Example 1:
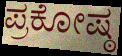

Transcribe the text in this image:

ಪ್ರಕೋಷ್ಠ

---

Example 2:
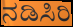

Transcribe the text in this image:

ನಡಿಸಿರಿ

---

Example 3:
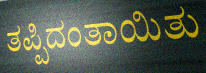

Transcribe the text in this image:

ತಪ್ಪಿದಂತಾಯಿತು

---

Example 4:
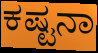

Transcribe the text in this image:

ಕಷ್ಟನಾ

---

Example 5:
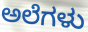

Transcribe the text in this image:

ಅಲೆಗಳು